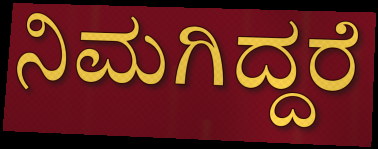
ನಿಮಗಿದ್ದರೆ